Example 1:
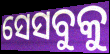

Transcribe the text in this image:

ସେସବୁକୁ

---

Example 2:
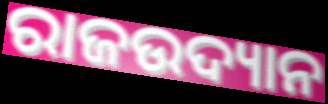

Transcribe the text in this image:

ରାଜଉଦ୍ୟାନ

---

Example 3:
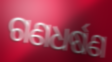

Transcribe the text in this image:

ଗଣଧର୍ଷଣ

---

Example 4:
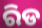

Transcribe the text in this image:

ରିଡ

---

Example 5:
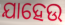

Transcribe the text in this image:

ଯାହେଉ